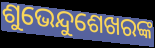
ଶୁଭେନ୍ଦୁଶେଖରଙ୍କ